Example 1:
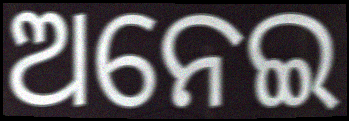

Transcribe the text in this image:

ଅନେଇ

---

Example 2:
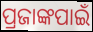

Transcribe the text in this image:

ପ୍ରଜାଙ୍କପାଇଁ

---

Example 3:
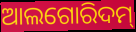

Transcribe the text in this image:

ଆଲଗୋରିଦମ୍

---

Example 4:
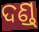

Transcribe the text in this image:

ଦଣ୍ଡ୍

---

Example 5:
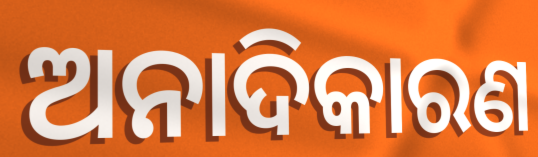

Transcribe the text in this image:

ଅନାଦିକାରଣ